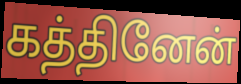
கத்தினேன்